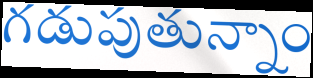
గడుపుతున్నాం